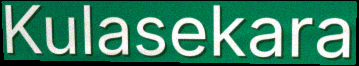
Kulasekara